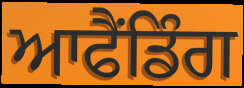
ਆਫੈਂਡਿੰਗ